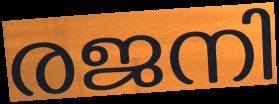
രജനി